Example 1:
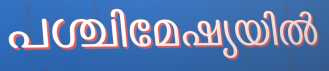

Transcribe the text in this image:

പശ്ചിമേഷ്യയിൽ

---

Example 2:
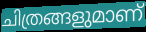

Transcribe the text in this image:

ചിത്രങ്ങളുമാണ്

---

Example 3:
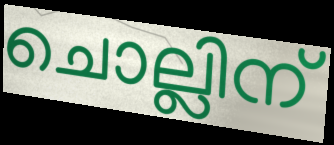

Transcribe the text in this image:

ചൊല്ലിന്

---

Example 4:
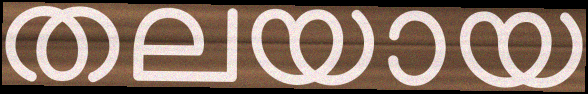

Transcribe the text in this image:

തലയായ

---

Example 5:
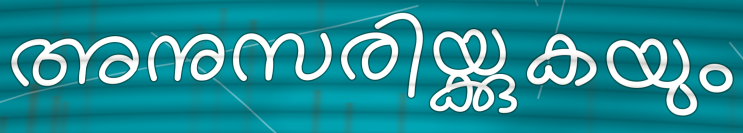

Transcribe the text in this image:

അനുസരിയ്ക്കുകയും